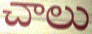
చాలు